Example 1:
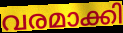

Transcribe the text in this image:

വരമാക്കി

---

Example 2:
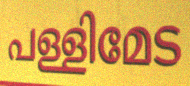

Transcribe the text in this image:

പള്ളിമേട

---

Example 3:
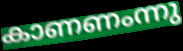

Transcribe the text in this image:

കാണണംന്നു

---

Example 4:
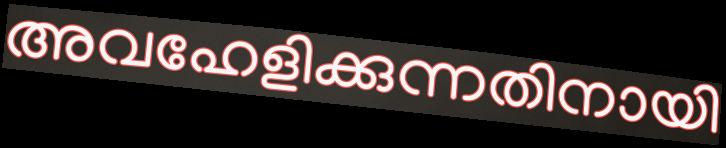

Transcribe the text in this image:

അവഹേളിക്കുന്നതിനായി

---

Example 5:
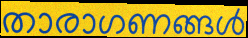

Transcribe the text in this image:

താരാഗണങ്ങൾ